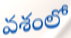
వశంలో